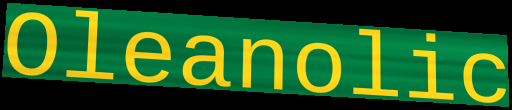
Oleanolic